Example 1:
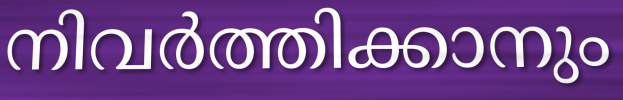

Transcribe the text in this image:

നിവർത്തിക്കാനും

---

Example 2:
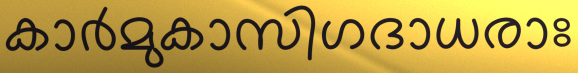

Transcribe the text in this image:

കാർമുകാസിഗദാധരാഃ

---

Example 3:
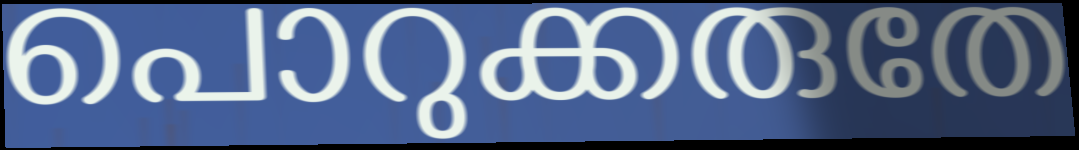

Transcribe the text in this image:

പൊറുക്കരുതേ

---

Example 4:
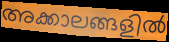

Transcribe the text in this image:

അക്കാലങ്ങളിൽ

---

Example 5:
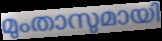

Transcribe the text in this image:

മുംതാസുമായി